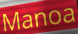
Manoa